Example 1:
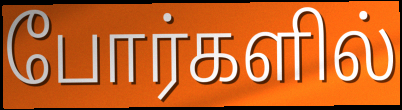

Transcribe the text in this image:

போர்களில்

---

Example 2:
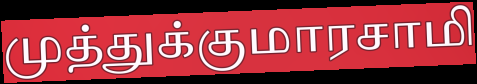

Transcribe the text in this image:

முத்துக்குமாரசாமி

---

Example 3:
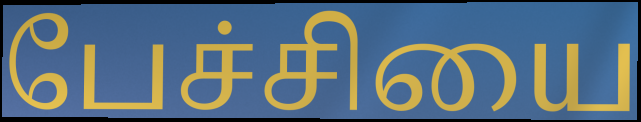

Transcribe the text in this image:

பேச்சியை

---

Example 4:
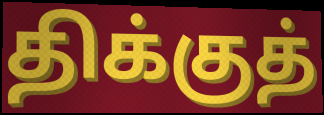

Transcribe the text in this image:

திக்குத்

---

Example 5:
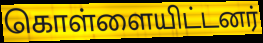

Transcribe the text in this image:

கொள்ளையிட்டனர்